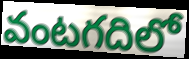
వంటగదిలో